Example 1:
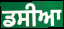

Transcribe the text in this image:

ਡਸੀਆ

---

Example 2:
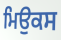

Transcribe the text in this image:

ਮਿਉਕਸ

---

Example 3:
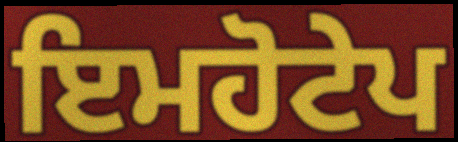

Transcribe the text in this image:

ਇਮਹੋਟੇਪ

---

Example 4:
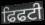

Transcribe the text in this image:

ਫਿਫਟੀ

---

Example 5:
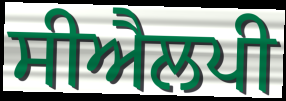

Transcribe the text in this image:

ਸੀਐਲਪੀ